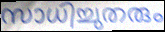
സാധിച്ചുതരും